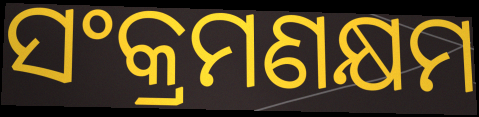
ସଂକ୍ରମଣକ୍ଷମ